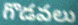
గొడవలు